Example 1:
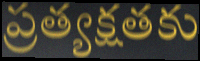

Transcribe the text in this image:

ప్రత్యక్షతకు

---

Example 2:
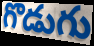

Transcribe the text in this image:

గొడుగు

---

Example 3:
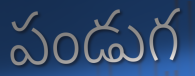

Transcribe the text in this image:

పండుగ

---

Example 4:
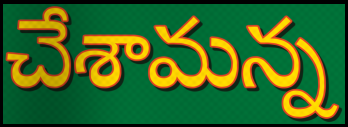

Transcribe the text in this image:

చేశామన్న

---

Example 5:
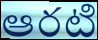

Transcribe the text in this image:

ఆరటి